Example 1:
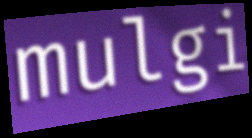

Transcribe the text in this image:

mulgi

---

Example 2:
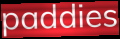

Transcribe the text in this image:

paddies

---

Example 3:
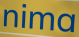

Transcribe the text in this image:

nima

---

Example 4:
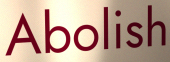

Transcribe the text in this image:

Abolish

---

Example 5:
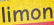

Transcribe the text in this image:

limon